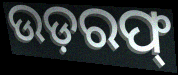
ଉଡ଼ରଫ୍